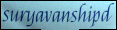
suryavanshipd